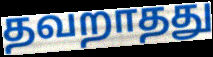
தவறாதது